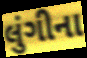
લુંગીના